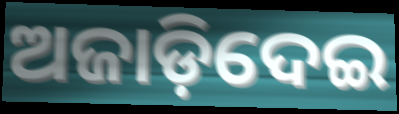
ଅଜାଡ଼ିଦେଇ